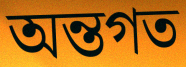
অন্তগত